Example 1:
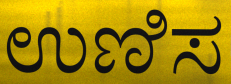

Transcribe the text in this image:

ಉಣಿಸ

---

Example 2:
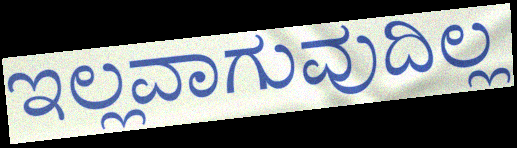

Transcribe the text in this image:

ಇಲ್ಲವಾಗುವುದಿಲ್ಲ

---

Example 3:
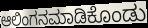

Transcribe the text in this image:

ಆಲಿಂಗನಮಾಡಿಕೊಂಡು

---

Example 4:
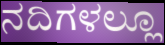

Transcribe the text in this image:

ನದಿಗಳಲ್ಲೂ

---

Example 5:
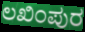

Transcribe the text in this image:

ಲಖಿಂಪುರ